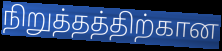
நிறுத்தத்திற்கான